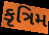
કૃત્રિમ